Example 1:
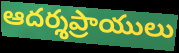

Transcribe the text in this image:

ఆదర్శప్రాయులు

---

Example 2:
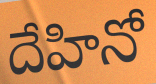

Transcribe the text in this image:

దేహినో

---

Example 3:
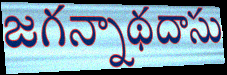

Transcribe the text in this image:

జగన్నాథదాసు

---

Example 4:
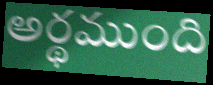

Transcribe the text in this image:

అర్థముంది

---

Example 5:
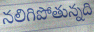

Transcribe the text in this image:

నలిగిపోతున్నది